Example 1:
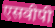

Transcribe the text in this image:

एसवीपी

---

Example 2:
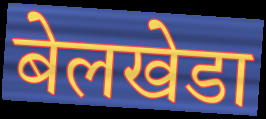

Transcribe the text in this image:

बेलखेडा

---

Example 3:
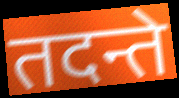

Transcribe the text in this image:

तदन्ते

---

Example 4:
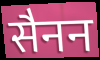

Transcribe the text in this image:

सैनन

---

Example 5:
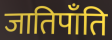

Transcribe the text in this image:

जातिपाँति